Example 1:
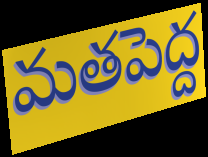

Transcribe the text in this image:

మతపెద్ద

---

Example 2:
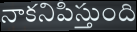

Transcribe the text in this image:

నాకనిపిస్తుంది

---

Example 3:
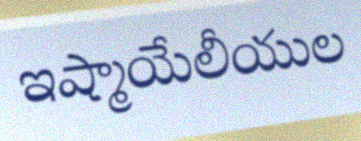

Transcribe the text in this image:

ఇష్మాయేలీయుల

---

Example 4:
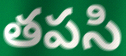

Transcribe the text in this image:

తపసి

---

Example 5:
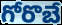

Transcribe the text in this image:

గోరొబే